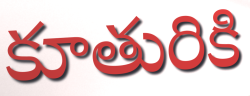
కూతురికి